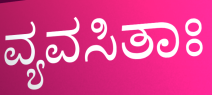
ವ್ಯವಸಿತಾಃ